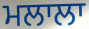
ਮਲਾਲਾ